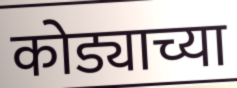
कोड्याच्या